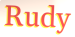
Rudy